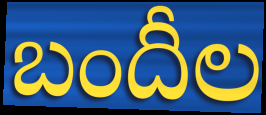
బందీల